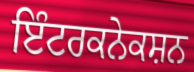
ਇੰਟਰਕਨੇਕਸ਼ਨ